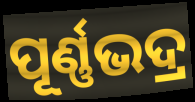
ପୂର୍ଣ୍ଣଭଦ୍ର